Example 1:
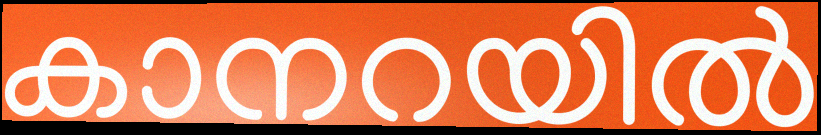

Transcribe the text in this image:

കാനറയിൽ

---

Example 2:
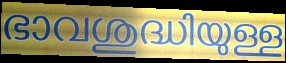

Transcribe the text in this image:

ഭാവശുദ്ധിയുള്ള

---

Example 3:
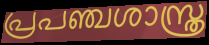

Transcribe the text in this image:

പ്രപഞ്ചശാസ്ത്ര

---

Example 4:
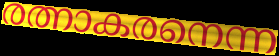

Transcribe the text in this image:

രത്നാകരനെന്ന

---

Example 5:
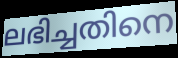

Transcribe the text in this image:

ലഭിച്ചതിനെ